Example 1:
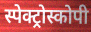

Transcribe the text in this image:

स्पेक्ट्रोस्कोपी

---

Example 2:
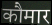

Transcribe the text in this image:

कौमार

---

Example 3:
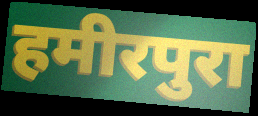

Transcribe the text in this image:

हमीरपुरा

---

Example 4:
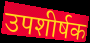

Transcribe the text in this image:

उपशीर्षक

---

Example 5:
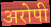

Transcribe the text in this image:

अरोपी